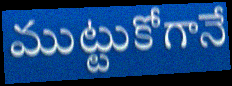
ముట్టుకోగానే